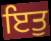
ਇਤੁ